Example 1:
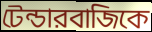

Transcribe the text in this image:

টেন্ডারবাজিকে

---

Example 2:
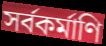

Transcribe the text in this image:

সর্বকর্মাণি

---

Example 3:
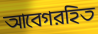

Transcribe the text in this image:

আবেগরহিত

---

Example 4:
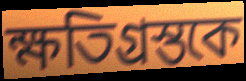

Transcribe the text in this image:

ক্ষতিগ্রস্তকে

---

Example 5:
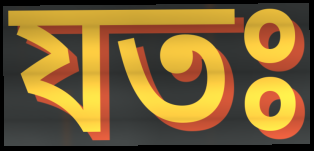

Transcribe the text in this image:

যতঃ